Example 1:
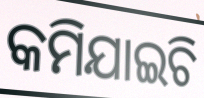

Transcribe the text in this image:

କମିଯାଇଚି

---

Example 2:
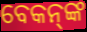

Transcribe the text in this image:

ବେକନ୍‌ଙ୍କ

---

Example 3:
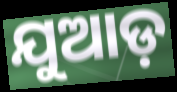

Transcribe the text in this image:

ଯୁଆଡ଼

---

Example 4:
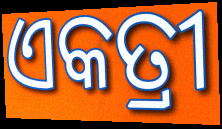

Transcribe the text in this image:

ଏକତ୍ରୀ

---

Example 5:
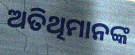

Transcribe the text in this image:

ଅତିଥିମାନଙ୍କ